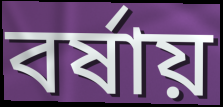
বর্ষায়